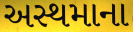
અસ્થમાના